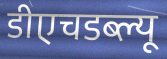
डीएचडब्ल्यू